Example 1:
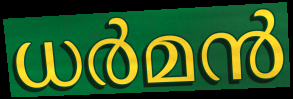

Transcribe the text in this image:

ധർമൻ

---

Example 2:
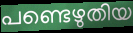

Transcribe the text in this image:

പണ്ടെഴുതിയ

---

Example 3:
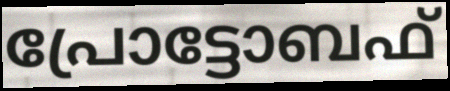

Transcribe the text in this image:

പ്രോട്ടോബഫ്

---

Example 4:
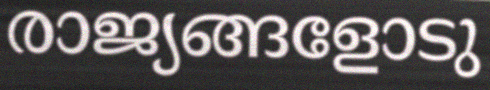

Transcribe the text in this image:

രാജ്യങ്ങളോടു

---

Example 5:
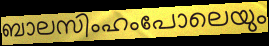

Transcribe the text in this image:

ബാലസിംഹംപോലെയും